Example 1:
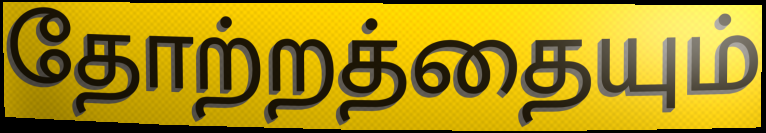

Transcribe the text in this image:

தோற்றத்தையும்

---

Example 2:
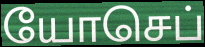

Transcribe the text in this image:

யோசெப்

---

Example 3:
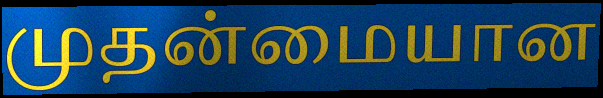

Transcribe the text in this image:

முதன்மையான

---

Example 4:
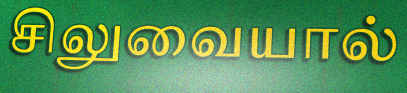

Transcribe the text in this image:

சிலுவையால்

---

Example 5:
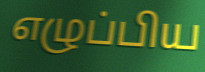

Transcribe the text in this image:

எழுப்பிய